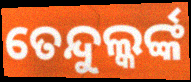
ତେନ୍ଦୁଲ୍କର୍ଙ୍କ